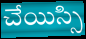
చేయిస్సి